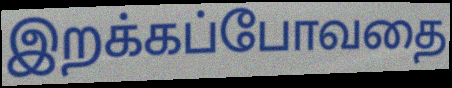
இறக்கப்போவதை